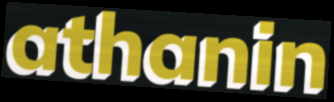
athanin